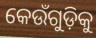
କେଉଁଗୁଡ଼ିକୁ